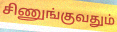
சிணுங்குவதும்